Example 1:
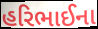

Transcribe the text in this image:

હરિભાઈના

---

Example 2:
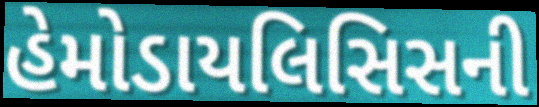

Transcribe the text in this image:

હેમોડાયલિસિસની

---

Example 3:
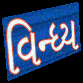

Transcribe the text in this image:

વિન્ધ્ય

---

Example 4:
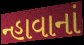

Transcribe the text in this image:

ન્હાવાનાં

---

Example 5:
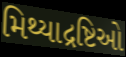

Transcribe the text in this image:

મિથ્યાદ્રષ્ટિઓ